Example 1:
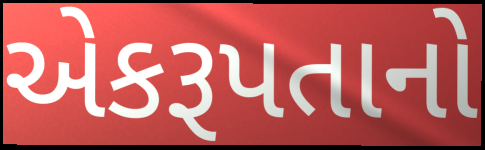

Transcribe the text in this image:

એકરૂપતાનો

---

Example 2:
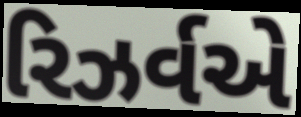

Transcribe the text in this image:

રિઝર્વએ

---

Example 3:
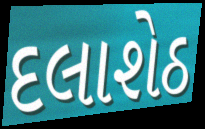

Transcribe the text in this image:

દલાશેઠ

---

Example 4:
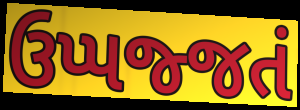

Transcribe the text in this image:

ઉપ્પજ્જતં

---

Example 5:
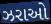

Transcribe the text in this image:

ઝરાઓ